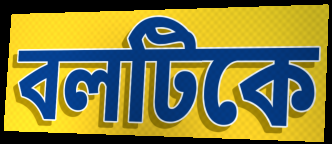
বলটিকে